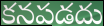
కనపడదు